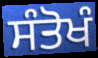
ਸੰਤੋਖੰ